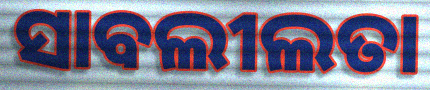
ସାବଲୀଲତା